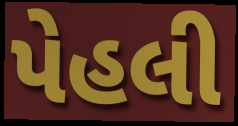
પેહલી